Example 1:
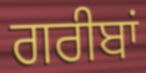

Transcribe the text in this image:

ਗਰੀਬਾਂ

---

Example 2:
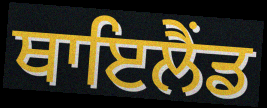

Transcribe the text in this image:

ਥਾਇਲੈਂਡ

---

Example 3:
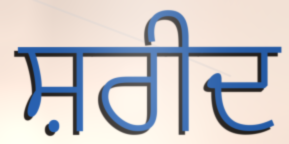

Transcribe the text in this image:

ਸ਼ਰੀਦ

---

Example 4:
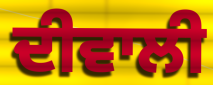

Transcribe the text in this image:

ਦੀਵਾਲੀ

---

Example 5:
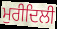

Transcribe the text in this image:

ਮੁਰੀਦਿਲੀ